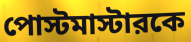
পোস্টমাস্টারকে